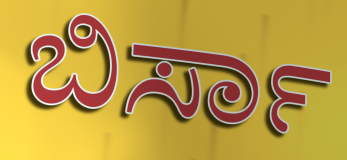
ಬಿರ್ಸಾ